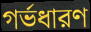
গর্ভধারণ